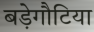
बड़ेगौटिया